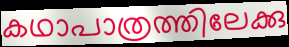
കഥാപാത്രത്തിലേക്കു